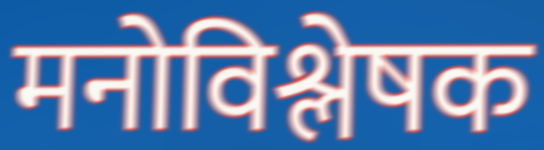
मनोविश्लेषक